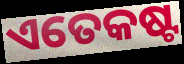
ଏତେକଷ୍ଟ